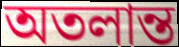
অতলান্ত